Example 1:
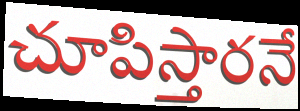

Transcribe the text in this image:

చూపిస్తారనే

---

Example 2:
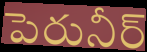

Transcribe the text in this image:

పెరునీర్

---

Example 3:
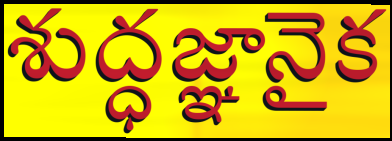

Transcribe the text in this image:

శుద్ధజ్ఞానైక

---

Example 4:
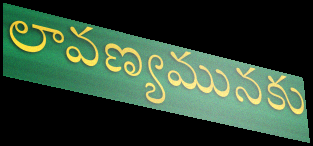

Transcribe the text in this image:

లావణ్యమునకు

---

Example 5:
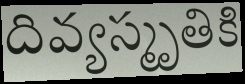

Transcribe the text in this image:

దివ్యస్మృతికి